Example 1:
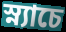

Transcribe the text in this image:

স্ন্যাচে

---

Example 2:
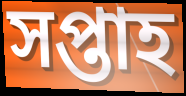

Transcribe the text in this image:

সপ্তাহ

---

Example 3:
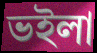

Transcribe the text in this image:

ভইলা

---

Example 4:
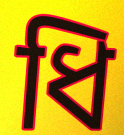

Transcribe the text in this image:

ধি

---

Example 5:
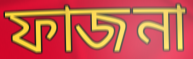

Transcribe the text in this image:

ফাজনা